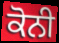
ਕੋਨੀ